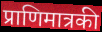
प्राणिमात्रकी